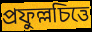
প্রফুল্লচিত্তে